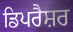
ਡਿਪਰੈਸ਼ਰ